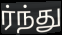
ர்ந்து